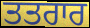
ਤਤਰਾਰ